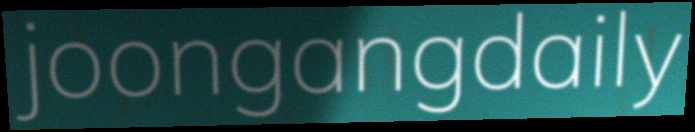
joongangdaily